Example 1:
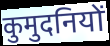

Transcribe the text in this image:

कुमुदनियों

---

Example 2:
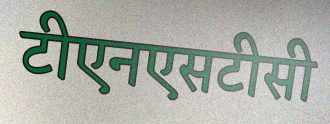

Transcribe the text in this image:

टीएनएसटीसी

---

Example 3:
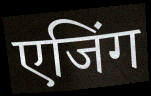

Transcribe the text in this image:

एजिंग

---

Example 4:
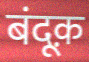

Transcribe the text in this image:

बंदूक़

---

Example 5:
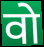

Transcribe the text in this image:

वो